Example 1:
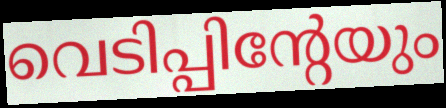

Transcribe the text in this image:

വെടിപ്പിന്റേയും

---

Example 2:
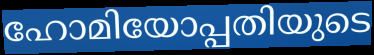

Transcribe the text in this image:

ഹോമിയോപ്പതിയുടെ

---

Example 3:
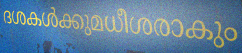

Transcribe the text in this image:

ദശകൾക്കുമധീശരാകും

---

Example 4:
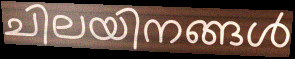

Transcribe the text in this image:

ചിലയിനങ്ങൾ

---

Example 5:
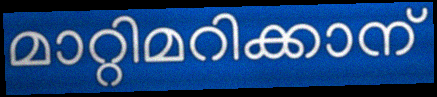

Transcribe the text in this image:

മാറ്റിമറിക്കാന്